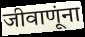
जीवाणूंना